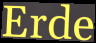
Erde